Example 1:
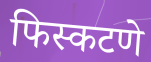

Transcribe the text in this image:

फिस्कटणे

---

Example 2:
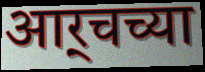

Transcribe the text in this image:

आर्चच्या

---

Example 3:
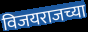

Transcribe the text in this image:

विजयराजच्या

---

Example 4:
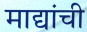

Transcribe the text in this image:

माद्यांची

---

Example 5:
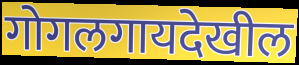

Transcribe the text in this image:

गोगलगायदेखील